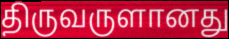
திருவருளானது